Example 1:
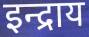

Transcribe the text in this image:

इन्द्राय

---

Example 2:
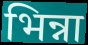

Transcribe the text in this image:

भिन्ना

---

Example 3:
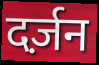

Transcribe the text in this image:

दर्ज़न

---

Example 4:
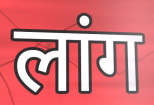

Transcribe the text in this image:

लांग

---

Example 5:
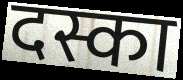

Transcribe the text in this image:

दस्का